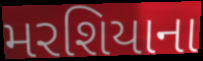
મરશિયાના